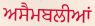
ਅਸੈਮਬਲੀਆਂ